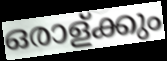
ഒരാള്ക്കും